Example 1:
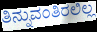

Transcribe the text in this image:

ತಿನ್ನುವಂತಿರಲಿಲ್ಲ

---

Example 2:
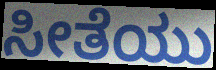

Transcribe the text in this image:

ಸೀತೆಯು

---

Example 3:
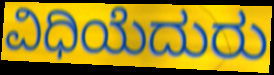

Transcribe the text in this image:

ವಿಧಿಯೆದುರು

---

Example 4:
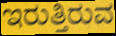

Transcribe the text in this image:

ಇರುತ್ತಿರುವ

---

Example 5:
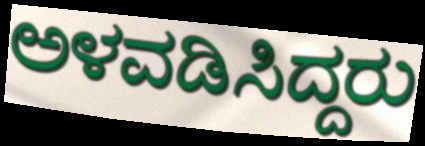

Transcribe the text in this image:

ಅಳವಡಿಸಿದ್ದರು